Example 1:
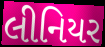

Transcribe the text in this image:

લીનિયર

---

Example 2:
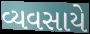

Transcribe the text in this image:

વ્યવસાયે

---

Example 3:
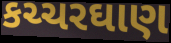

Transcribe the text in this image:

કચ્ચરઘાણ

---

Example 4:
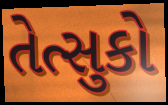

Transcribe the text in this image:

તેત્સુકો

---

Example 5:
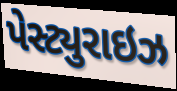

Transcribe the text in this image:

પેસ્ટ્યુરાઇઝ